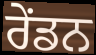
ਰੇਂਡਨ